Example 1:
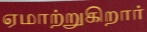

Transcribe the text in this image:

ஏமாற்றுகிறார்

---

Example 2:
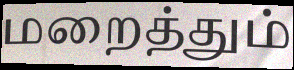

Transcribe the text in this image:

மறைத்தும்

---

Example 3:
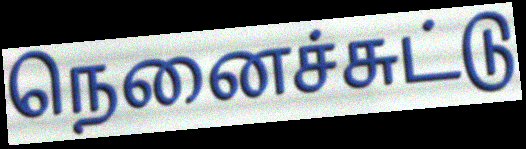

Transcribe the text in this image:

நெனைச்சுட்டு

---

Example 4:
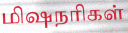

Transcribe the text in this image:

மிஷநரிகள்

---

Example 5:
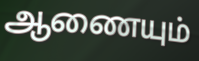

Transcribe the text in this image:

ஆணையும்